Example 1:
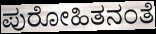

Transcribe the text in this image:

ಪುರೋಹಿತನಂತೆ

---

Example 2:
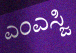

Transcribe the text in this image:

ಎಂಎಸ್ಜಿ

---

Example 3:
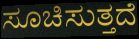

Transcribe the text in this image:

ಸೂಚಿಸುತ್ತದೆ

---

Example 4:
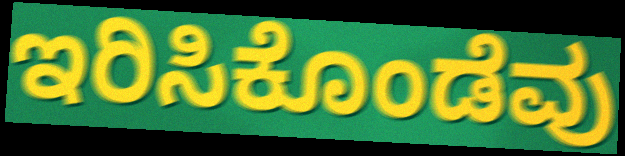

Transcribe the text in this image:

ಇರಿಸಿಕೊಂಡೆವು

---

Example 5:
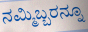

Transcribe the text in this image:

ನಮ್ಮಿಬ್ಬರನ್ನೂ